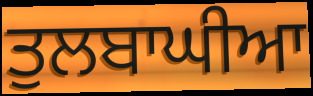
ਤੁਲਬਾਘੀਆ